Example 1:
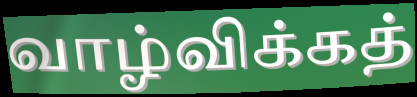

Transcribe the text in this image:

வாழ்விக்கத்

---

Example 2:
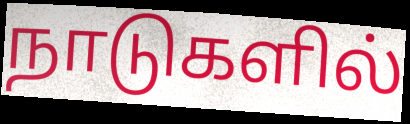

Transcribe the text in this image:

நாடுகளில்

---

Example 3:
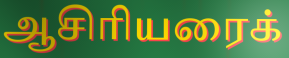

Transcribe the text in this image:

ஆசிரியரைக்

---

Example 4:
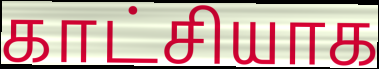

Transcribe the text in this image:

காட்சியாக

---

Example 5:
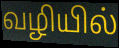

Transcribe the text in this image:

வழியில்